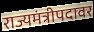
राज्यमंत्रीपदावर